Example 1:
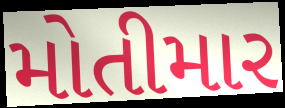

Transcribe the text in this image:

મોતીમાર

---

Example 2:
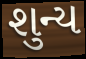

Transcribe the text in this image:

શુન્ય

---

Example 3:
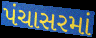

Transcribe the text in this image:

પંચાસરમાં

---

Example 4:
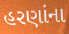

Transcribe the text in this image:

હરણાંના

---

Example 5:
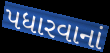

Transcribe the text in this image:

પધારવાનાં